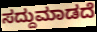
ಸದ್ದುಮಾಡದೆ